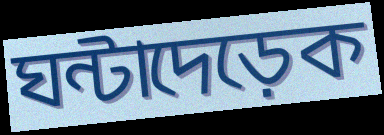
ঘন্টাদেড়েক